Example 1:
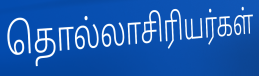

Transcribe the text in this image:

தொல்லாசிரியர்கள்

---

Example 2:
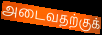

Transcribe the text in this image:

அடைவதற்குக்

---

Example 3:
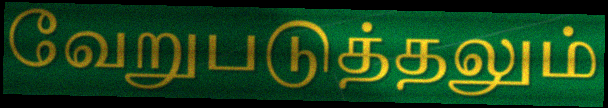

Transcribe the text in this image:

வேறுபடுத்தலும்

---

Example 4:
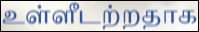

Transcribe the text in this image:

உள்ளீடற்றதாக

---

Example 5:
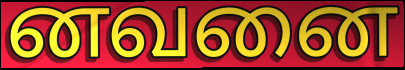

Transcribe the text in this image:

னவனை